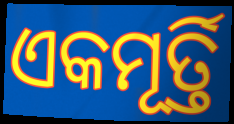
ଏକମୂର୍ତ୍ତି